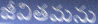
జీవితమను